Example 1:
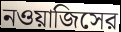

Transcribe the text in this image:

নওয়াজিসের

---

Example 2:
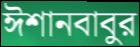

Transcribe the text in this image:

ঈশানবাবুর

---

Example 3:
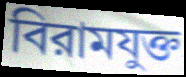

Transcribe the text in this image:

বিরামযুক্ত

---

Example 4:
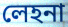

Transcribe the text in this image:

লেহনা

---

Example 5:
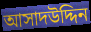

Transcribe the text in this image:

আসাদউদ্দিন